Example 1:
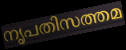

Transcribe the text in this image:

നൃപതിസത്തമ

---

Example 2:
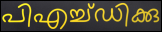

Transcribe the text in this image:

പിഎച്ച്ഡിക്കു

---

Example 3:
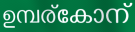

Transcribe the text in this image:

ഉമ്പര്കോന്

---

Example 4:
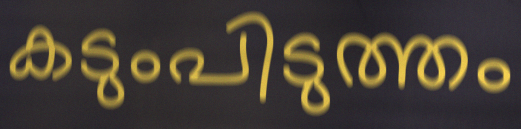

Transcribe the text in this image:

കടുംപിടുത്തം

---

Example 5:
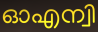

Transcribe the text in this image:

ഓഎന്വി